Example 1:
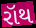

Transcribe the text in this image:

રૉથ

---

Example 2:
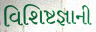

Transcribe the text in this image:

વિશિષ્ટજ્ઞાની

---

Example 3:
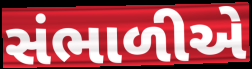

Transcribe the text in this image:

સંભાળીએ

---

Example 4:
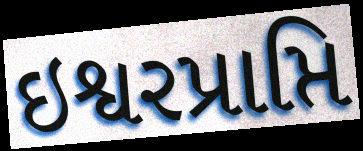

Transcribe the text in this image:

ઇશ્વરપ્રાપ્તિ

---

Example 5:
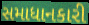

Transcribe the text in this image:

સમાધાનકારી